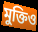
মুক্তিও